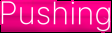
Pushing